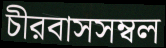
চীরবাসসম্বল